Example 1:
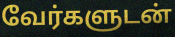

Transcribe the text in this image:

வேர்களுடன்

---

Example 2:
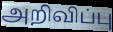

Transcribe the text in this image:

அறிவிப்பு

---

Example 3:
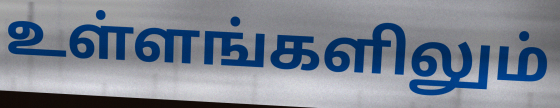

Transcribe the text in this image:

உள்ளங்களிலும்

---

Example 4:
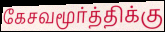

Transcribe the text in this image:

கேசவமூர்த்திக்கு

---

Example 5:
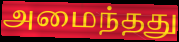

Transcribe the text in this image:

அமைந்தது